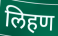
लिहण